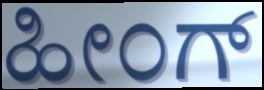
ಹೀಂಗ್